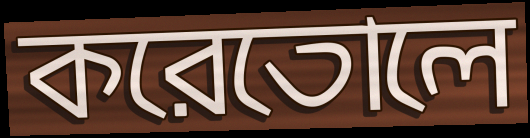
করেতোলে